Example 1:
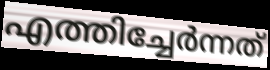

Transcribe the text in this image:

എത്തിച്ചേർന്നത്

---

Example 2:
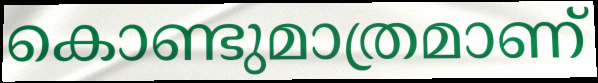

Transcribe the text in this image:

കൊണ്ടുമാത്രമാണ്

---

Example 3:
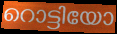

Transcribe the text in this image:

റൊട്ടിയോ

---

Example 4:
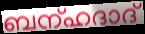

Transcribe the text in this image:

ബന്ഹദാദ്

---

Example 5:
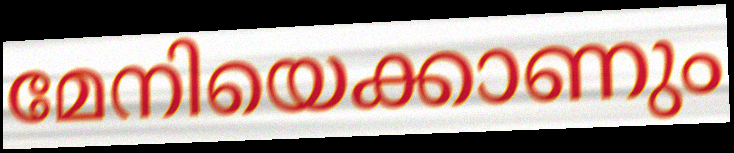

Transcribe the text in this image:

മേനിയെക്കാണും